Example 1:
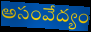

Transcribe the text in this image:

అసంవేద్యం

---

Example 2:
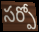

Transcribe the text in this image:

సర్పో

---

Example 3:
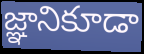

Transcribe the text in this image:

జ్ఞానికూడా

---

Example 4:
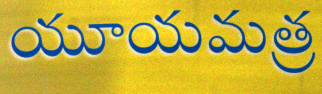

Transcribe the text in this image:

యూయమత్ర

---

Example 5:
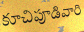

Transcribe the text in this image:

కూచిపూడివారి